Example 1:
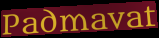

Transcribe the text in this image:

Padmavat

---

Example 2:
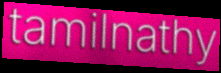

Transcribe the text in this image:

tamilnathy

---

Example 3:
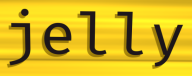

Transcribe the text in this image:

jelly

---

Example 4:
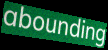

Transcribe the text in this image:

abounding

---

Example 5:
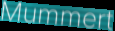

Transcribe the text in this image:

Mummert